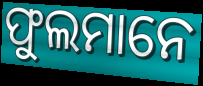
ଫୁଲମାନେ